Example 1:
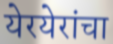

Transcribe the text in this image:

येरयेरांचा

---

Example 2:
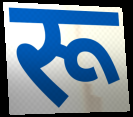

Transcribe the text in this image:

रू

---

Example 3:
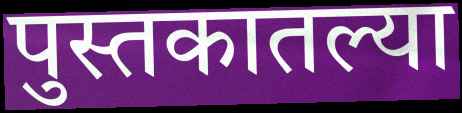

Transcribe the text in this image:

पुस्तकातल्या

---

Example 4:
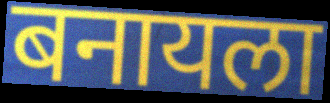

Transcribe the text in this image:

बनायला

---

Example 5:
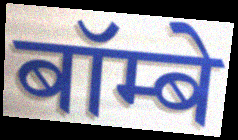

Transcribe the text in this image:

बॉम्बे